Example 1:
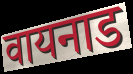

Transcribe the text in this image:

वायनाड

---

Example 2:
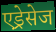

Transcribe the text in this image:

एड्रेसेज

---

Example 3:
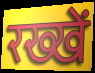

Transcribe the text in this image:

रख्खें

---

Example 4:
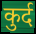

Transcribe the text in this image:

कुर्द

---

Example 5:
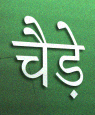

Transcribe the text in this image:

चैड़े